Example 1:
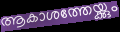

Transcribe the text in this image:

ആകാശത്തേയ്ക്കും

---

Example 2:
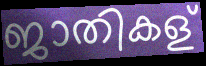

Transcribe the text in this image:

ജാതികള്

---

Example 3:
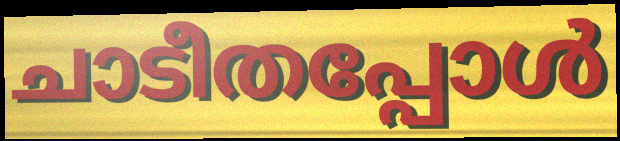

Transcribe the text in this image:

ചാടീതപ്പോൾ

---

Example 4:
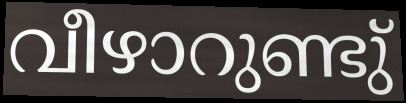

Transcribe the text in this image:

വീഴാറുണ്ടു്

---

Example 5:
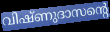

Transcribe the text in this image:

വിഷ്ണുദാസന്റെ